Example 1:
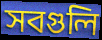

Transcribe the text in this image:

সবগুলি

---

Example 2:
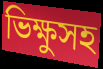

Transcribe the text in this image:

ভিক্ষুসহ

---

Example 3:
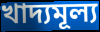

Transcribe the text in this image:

খাদ্যমূল্য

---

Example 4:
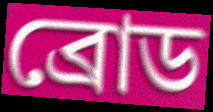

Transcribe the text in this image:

ব্রোড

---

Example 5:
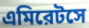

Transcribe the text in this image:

এমিরেটসে